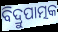
ବିଦ୍ରୁପାତ୍ମକ